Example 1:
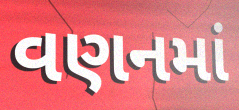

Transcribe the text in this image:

વણનમાં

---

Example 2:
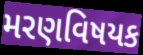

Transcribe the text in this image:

મરણવિષયક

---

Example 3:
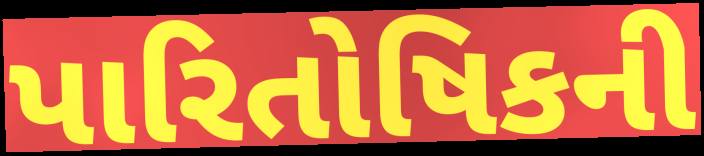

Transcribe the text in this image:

પારિતોષિકની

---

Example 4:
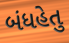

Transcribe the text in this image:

બંધહેતુ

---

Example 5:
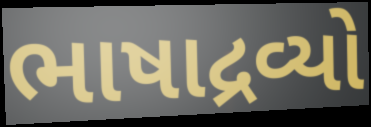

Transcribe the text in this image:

ભાષાદ્રવ્યો